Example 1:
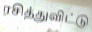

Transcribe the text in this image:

ரசித்துவிட்டு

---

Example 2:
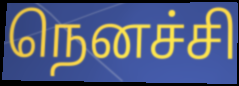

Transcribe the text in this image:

நெனச்சி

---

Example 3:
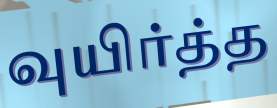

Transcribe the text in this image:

வுயிர்த்த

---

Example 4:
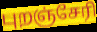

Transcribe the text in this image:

புறஞ்சேரி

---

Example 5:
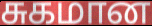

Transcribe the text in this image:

சுகமான